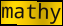
mathy